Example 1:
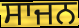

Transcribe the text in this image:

ਸਾਜਨ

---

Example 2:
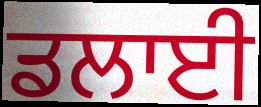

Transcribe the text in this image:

ਡਲਾਈ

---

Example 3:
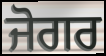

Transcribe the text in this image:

ਜੋਗਰ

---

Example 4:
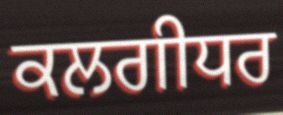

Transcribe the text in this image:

ਕਲਗੀਧਰ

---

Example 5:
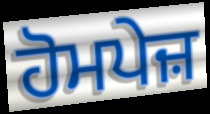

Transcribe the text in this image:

ਹੋਮਪੇਜ਼